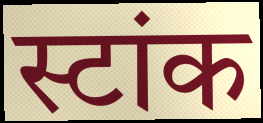
स्टांक